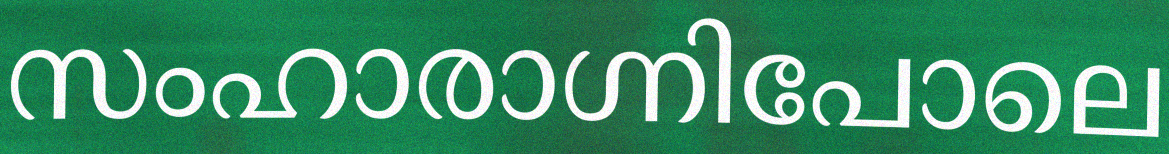
സംഹാരാഗ്നിപോലെ